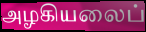
அழகியலைப்